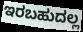
ಇರಬಹುದಲ್ಲ